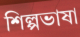
শিল্পভাষা